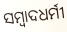
ସମ୍ବାଦଧର୍ମୀ